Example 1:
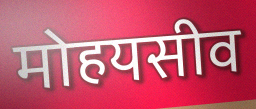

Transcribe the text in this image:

मोहयसीव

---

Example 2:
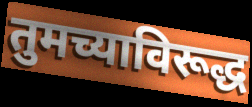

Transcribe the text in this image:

तुमच्याविरूद्ध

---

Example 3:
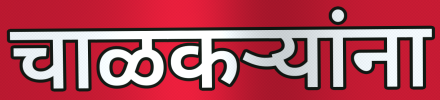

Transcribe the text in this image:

चाळकऱ्यांना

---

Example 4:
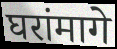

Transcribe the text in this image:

घरांमागे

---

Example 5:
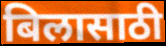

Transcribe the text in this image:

बिलासाठी